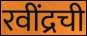
रवींद्रची